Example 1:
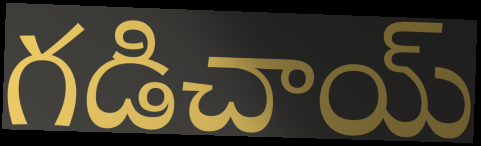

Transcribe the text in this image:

గడిచాయ్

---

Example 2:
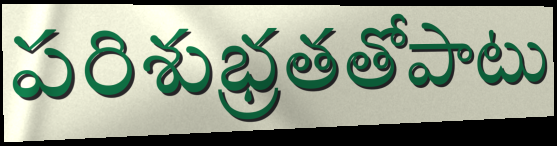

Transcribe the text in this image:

పరిశుభ్రతతోపాటు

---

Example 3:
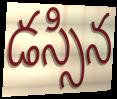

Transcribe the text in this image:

డస్సిన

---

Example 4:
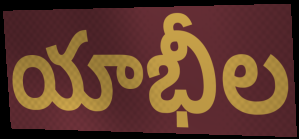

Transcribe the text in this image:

యాభీల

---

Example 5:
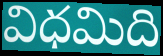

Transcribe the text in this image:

విధమిది